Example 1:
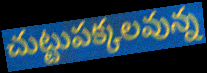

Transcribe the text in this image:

చుట్టుపక్కలవున్న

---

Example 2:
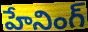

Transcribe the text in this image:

హేనింగ్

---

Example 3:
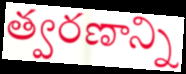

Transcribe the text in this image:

త్వరణాన్ని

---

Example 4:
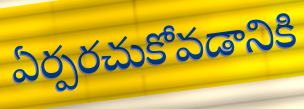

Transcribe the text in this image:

ఏర్పరచుకోవడానికి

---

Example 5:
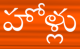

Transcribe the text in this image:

హోళ్లు